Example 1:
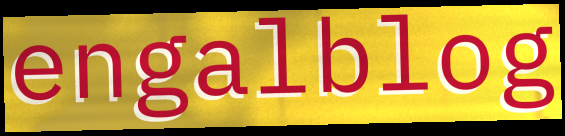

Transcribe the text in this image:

engalblog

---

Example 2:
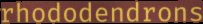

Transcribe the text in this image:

rhododendrons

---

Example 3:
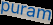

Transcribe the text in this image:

puram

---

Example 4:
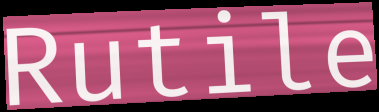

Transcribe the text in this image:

Rutile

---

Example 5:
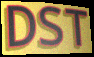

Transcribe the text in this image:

DST